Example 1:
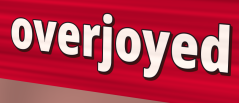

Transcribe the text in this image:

overjoyed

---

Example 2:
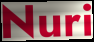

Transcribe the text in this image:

Nuri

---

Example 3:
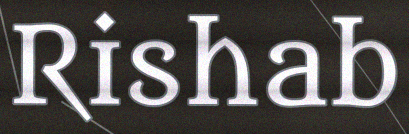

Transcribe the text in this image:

Rishab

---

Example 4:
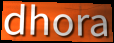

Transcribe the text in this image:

dhora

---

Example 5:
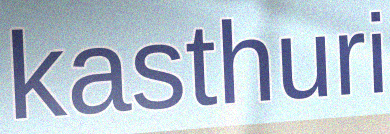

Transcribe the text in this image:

kasthuri